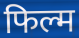
फिल्‍म